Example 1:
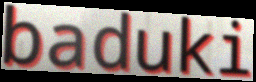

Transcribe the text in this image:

baduki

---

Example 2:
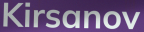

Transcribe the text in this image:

Kirsanov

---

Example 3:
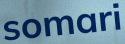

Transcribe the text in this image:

somari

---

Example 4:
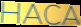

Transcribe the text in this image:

HACA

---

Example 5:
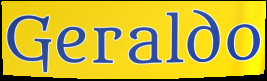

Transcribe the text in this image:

Geraldo